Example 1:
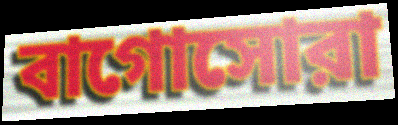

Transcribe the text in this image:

বাগোসোরা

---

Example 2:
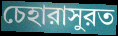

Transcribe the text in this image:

চেহারাসুরত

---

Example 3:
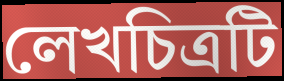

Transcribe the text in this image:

লেখচিত্রটি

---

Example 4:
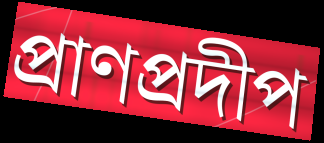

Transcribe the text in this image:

প্রাণপ্রদীপ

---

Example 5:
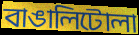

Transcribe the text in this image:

বাঙালিটোলা